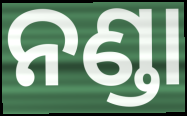
ନଣ୍ଡା